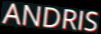
ANDRIS